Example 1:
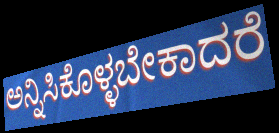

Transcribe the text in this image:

ಅನ್ನಿಸಿಕೊಳ್ಳಬೇಕಾದರೆ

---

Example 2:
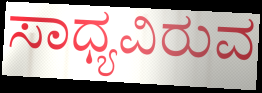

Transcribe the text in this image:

ಸಾಧ್ಯವಿರುವ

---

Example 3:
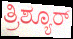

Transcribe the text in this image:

ತ್ರಿಶ್ಯೂರ್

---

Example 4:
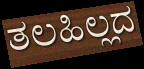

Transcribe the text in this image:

ತಲಹಿಲ್ಲದ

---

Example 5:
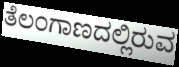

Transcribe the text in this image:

ತೆಲಂಗಾಣದಲ್ಲಿರುವ